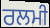
ਰਲਮੀ